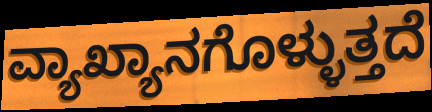
ವ್ಯಾಖ್ಯಾನಗೊಳ್ಳುತ್ತದೆ